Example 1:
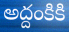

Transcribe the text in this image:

అద్దంకికి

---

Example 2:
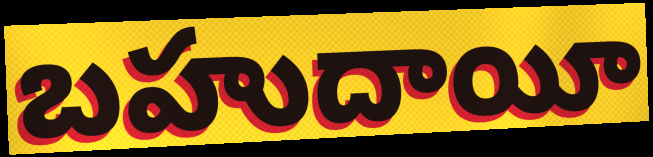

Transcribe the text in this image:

బహుదాయీ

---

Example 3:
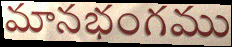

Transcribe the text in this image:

మానభంగము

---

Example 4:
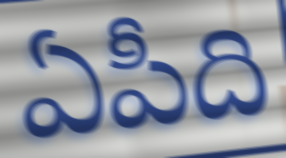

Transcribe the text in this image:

ఏపీది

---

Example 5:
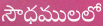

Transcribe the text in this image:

సౌధములలో